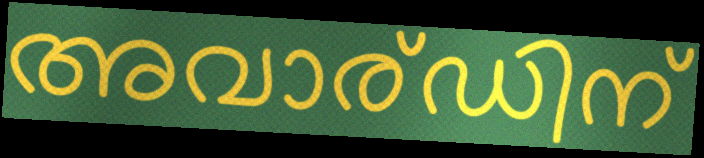
അവാര്ഡിന്